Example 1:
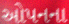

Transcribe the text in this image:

ઓપનના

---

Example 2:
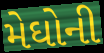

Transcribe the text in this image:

મેઘોની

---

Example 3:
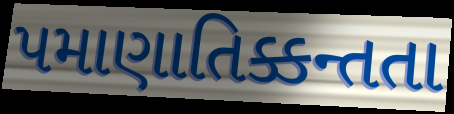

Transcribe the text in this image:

પમાણાતિક્કન્તતા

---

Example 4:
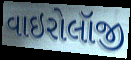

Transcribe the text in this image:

વાઇરોલૉજી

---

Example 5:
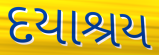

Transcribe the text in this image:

દયાશ્રય